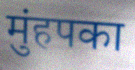
मुंहपका